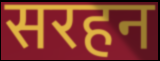
सरहन